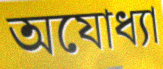
অযোধ্যা